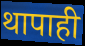
थापाही